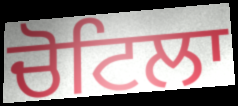
ਚੋਟਿਲਾ